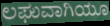
ಲಘುವಾಗಿಯೂ